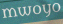
mwoyo